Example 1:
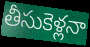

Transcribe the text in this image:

తీసుకెళ్లనా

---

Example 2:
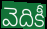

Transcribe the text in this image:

వెదికీ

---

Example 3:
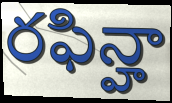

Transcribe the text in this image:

రఫిన్హా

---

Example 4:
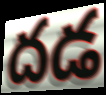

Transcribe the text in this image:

దడ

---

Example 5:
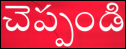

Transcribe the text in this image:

చెప్పండి